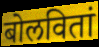
बोलवितां